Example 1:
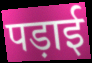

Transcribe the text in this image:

पड़ाई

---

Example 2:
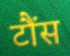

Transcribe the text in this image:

टौंस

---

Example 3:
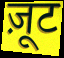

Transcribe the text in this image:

ज़ूट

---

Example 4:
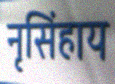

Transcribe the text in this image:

नृसिंहाय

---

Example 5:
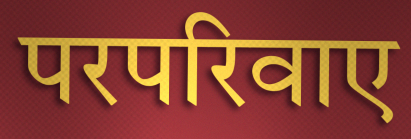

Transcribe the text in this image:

परपरिवाए